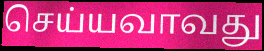
செய்யவாவது